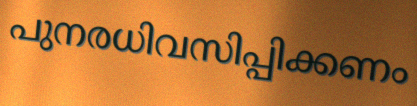
പുനരധിവസിപ്പിക്കണം